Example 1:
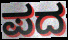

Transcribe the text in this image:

ಪದ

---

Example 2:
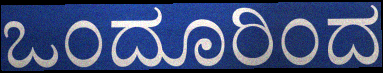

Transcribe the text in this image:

ಒಂದೂರಿಂದ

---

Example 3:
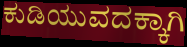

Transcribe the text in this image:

ಕುಡಿಯುವದಕ್ಕಾಗಿ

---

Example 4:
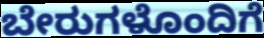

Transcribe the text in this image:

ಬೇರುಗಳೊಂದಿಗೆ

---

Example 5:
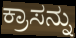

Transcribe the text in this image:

ಕ್ರಾಸನ್ನು